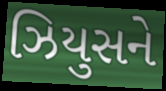
ઝિયુસને